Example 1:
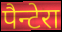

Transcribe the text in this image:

पैन्टेरा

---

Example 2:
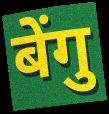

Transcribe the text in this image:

बेंगु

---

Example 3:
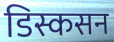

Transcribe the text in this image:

डिस्कसन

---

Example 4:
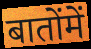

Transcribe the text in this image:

बातोंमें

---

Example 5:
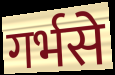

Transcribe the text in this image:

गर्भसे